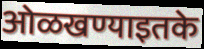
ओळखण्याइतके